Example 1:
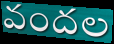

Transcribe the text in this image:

వందల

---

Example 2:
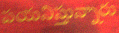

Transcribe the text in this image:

పయనిస్తున్నారు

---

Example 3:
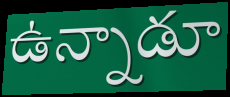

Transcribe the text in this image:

ఉన్నాడూ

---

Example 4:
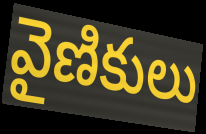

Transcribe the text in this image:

వైణికులు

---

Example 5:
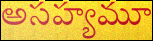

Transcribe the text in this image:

అసహ్యమూ